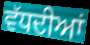
ਵੱਧਦੀਆਂ